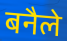
बनैले